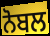
ਨੋਬਲ